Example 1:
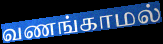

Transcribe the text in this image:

வணங்காமல்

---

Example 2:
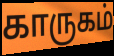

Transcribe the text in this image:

காருகம்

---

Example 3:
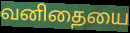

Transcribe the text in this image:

வனிதையை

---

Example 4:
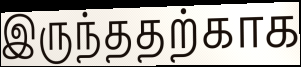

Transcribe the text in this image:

இருந்ததற்காக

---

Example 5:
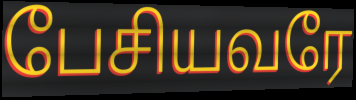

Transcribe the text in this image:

பேசியவரே